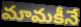
మామకీనే